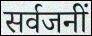
सर्वजनीं